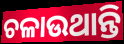
ଚଳାଉଥାନ୍ତି